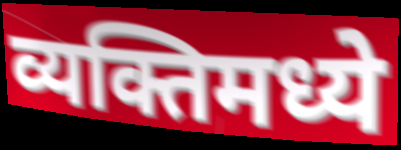
व्यक्तिमध्ये